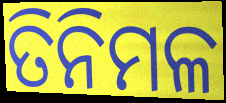
ତିନିମଳ